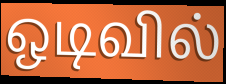
ஒடிவில்